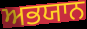
ਅਭਯਾਨ